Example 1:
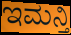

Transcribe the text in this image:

ಇಮನ್ತಿ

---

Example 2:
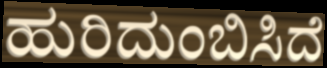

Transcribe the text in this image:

ಹುರಿದುಂಬಿಸಿದೆ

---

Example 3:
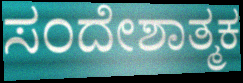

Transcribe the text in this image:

ಸಂದೇಶಾತ್ಮಕ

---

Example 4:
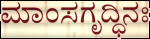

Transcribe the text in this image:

ಮಾಂಸಗೃದ್ಧಿನಃ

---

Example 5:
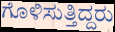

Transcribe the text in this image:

ಗೊಳಿಸುತ್ತಿದ್ದರು